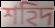
শহিদ